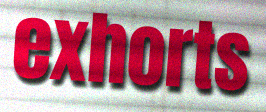
exhorts